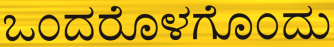
ಒಂದರೊಳಗೊಂದು